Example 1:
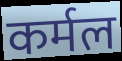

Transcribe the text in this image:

कर्मल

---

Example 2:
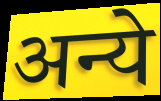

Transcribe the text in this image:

अन्ये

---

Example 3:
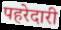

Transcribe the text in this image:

पहरेदारी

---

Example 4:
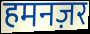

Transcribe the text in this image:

हमनज़र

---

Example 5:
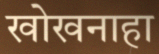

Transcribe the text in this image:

खोखनाहा